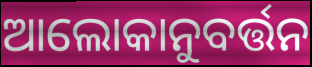
ଆଲୋକାନୁବର୍ତ୍ତନ